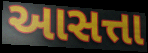
આસત્તા